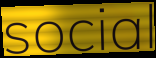
social